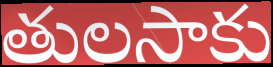
తులసాకు